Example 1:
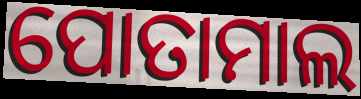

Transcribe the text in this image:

ପୋତାମାଲ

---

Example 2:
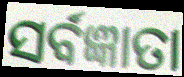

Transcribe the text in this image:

ସର୍ବଜ୍ଞାତା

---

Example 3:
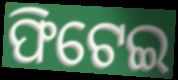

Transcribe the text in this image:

ଫିଟେଇ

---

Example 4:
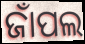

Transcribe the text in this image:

ଜାଁପଲ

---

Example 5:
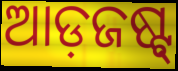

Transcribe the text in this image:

ଆଡ଼ଜଷ୍ଟ୍